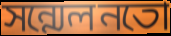
সন্মেলনতো